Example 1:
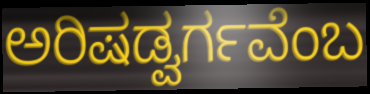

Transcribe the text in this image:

ಅರಿಷಡ್ವರ್ಗವೆಂಬ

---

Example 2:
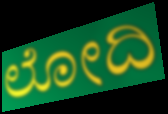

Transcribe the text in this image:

ಲೋದಿ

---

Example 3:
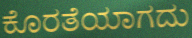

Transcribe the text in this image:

ಕೊರತೆಯಾಗದು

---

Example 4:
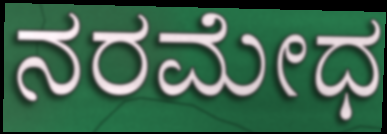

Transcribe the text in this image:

ನರಮೇಧ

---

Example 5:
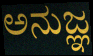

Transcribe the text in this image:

ಅನುಜ್ಞ